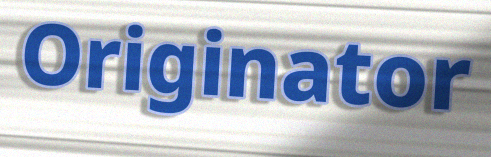
Originator